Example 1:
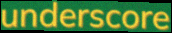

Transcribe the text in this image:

underscore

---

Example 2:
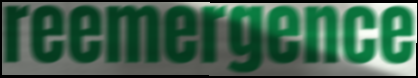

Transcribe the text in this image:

reemergence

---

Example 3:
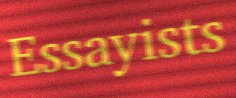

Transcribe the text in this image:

Essayists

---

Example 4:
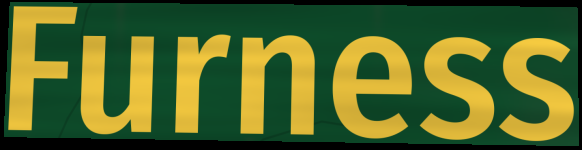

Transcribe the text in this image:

Furness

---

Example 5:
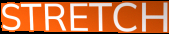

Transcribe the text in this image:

STRETCH